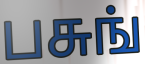
பசுங்